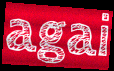
agai